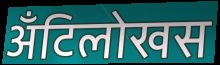
अँटिलोखस